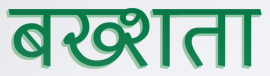
बख्शता